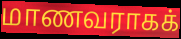
மாணவராகக்